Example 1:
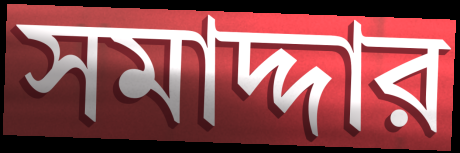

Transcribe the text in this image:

সমাদ্দার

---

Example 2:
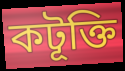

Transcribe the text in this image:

কটূক্তি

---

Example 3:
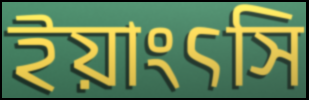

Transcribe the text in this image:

ইয়াংৎসি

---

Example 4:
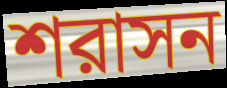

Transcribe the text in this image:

শরাসন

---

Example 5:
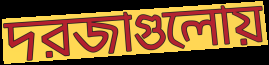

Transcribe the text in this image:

দরজাগুলোয়